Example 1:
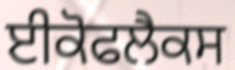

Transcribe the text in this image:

ਈਕੋਫਲੈਕਸ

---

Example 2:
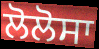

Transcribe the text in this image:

ਲੋਲੋਸਾ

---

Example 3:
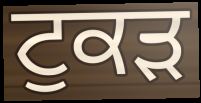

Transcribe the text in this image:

ਟੁਕੜ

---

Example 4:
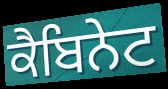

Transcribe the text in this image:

ਕੈਬਿਨੇਟ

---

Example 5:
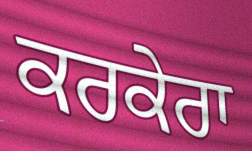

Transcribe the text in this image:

ਕਰਕੇਰਾ